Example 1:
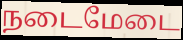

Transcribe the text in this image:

நடைமேடை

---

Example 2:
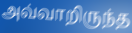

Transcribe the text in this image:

அவ்வாறிருந்த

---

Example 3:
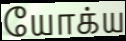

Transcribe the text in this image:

யோக்ய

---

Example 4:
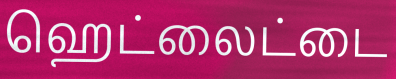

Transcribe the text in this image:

ஹெட்லைட்டை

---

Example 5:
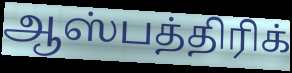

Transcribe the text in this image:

ஆஸ்பத்திரிக்